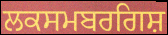
ਲਕਸਮਬਰਗਿਸ਼